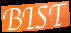
BIST